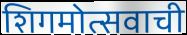
शिगमोत्सवाची